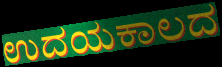
ಉದಯಕಾಲದ